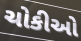
ચોકીઓ